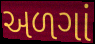
અળગાં